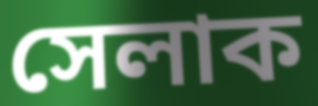
সেলাক